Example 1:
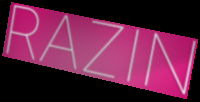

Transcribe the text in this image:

RAZIN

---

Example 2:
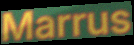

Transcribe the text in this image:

Marrus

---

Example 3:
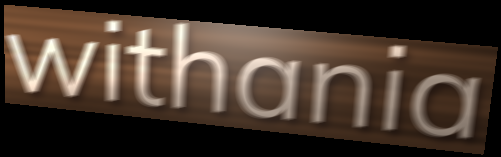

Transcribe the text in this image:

withania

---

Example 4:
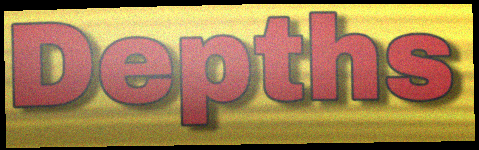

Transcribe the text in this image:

Depths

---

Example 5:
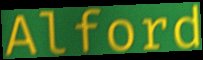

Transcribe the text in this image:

Alford